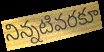
నిన్నటివరకూ